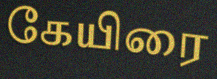
கேயிரை